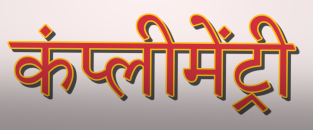
कंप्लीमेंट्री